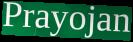
Prayojan